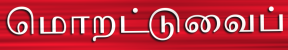
மொறட்டுவைப்